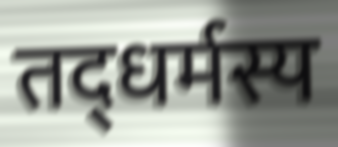
तद्धर्मस्य